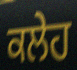
ਕਲੇਹ